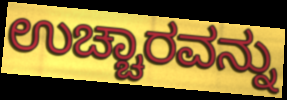
ಉಚ್ಚಾರವನ್ನು